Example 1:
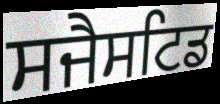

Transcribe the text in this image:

ਸਜੈਸਟਿਡ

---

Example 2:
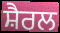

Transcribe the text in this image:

ਸ਼ੈਰਲ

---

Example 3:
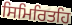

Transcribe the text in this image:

ਸਿਮਿਰਿਤਹਿ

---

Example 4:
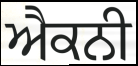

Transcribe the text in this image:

ਐਕਨੀ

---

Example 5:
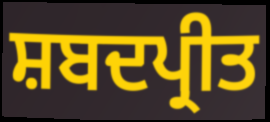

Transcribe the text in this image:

ਸ਼ਬਦਪ੍ਰੀਤ